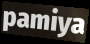
pamiya